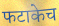
फटाकेच